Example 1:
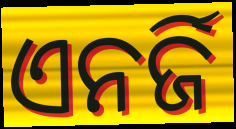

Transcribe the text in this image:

ଏନର୍ଜି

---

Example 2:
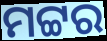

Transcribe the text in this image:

ମଟ୍ଟର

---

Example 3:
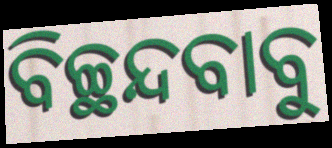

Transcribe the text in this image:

ବିଚ୍ଛନ୍ଦବାବୁ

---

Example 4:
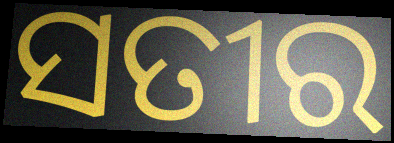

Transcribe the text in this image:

ସତୀର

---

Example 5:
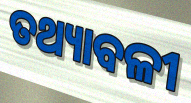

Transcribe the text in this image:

ତଥ୍ୟାବଳୀ